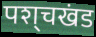
पश्चखंड